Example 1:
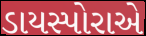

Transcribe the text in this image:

ડાયસ્પોરાએ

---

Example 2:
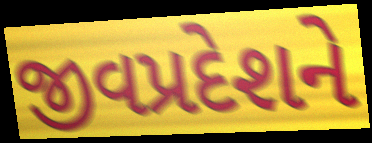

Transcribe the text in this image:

જીવપ્રદેશને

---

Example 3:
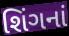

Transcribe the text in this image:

શિંગનાં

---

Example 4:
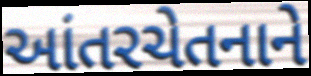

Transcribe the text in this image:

આંતરચેતનાને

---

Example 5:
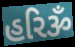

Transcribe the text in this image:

હરિૐ